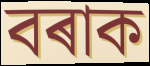
বৰাক